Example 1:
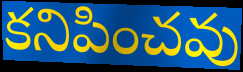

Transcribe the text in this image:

కనిపించవు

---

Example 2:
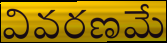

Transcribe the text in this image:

వివరణమే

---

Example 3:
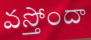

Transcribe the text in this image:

వస్తోందా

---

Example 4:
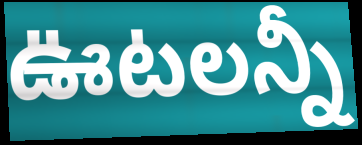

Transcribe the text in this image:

ఊటలన్నీ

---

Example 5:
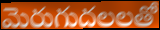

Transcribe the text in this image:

మెరుగుదలలతో